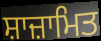
ਸ਼ਾਜ਼ਾਮਿਤ